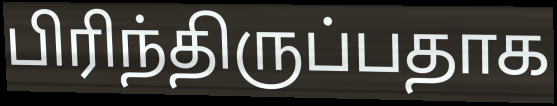
பிரிந்திருப்பதாக